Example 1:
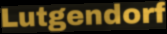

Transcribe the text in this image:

Lutgendorf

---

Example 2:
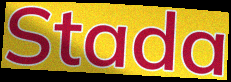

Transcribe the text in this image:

Stada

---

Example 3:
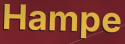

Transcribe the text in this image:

Hampe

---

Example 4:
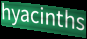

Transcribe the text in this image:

hyacinths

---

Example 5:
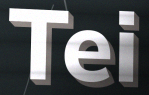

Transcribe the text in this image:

Tei